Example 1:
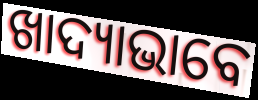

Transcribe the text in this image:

ଖାଦ୍ୟାଭାବେ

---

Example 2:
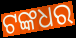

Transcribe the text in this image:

ଟଙ୍କଧର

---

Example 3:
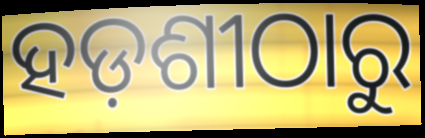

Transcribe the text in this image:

ହଡ଼ଶୀଠାରୁ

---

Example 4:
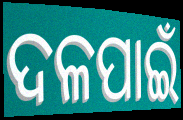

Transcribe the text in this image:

ଦଳପାଇଁ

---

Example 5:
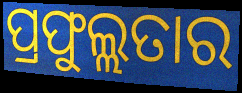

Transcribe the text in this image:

ପ୍ରଫୁଲ୍ଲତାର